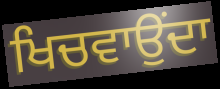
ਖਿਚਵਾਉਂਦਾ